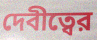
দেবীত্বের